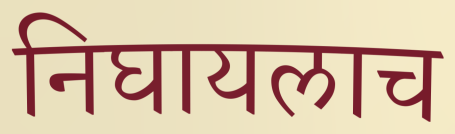
निघायलाच